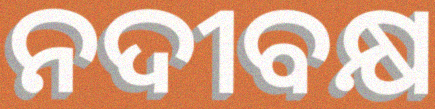
ନଦୀବକ୍ଷ